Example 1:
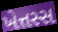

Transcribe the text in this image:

ખેત્તસ્સ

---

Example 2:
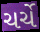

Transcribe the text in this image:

ચર્ચે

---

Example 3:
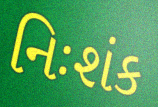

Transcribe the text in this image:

નિઃશંક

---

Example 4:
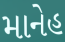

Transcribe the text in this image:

માનેહ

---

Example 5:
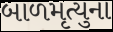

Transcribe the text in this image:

બાળમૃત્યુના